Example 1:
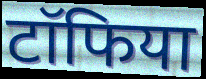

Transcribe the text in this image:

टॉफिया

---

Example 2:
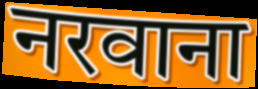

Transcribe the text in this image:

नरवाना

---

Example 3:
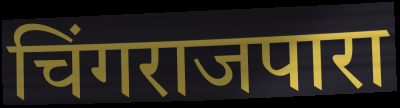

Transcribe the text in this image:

चिंगराजपारा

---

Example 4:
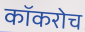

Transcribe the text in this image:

कॉकरोच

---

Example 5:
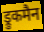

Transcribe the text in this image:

ड्रुकमैन